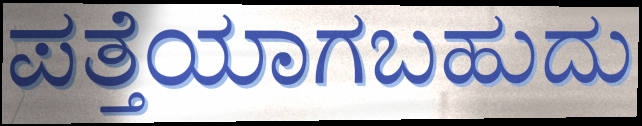
ಪತ್ತೆಯಾಗಬಹುದು